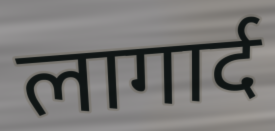
लागार्द